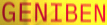
GENIBEN